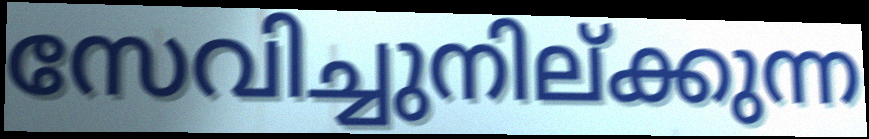
സേവിച്ചുനില്ക്കുന്ന